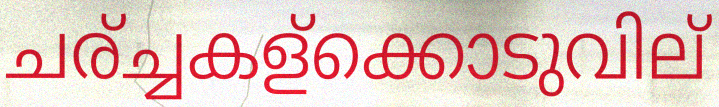
ചര്ച്ചകള്ക്കൊടുവില്